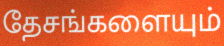
தேசங்களையும்